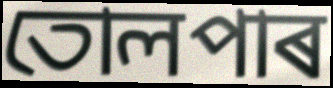
তোলপাৰ